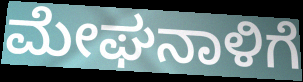
ಮೇಘನಾಳಿಗೆ